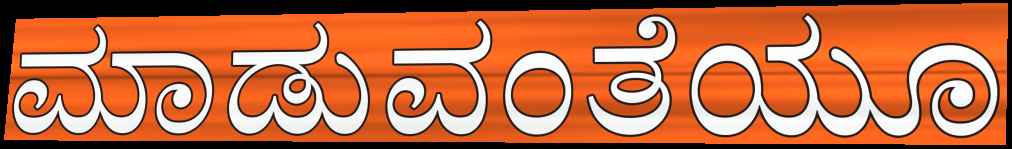
ಮಾಡುವಂತೆಯೂ